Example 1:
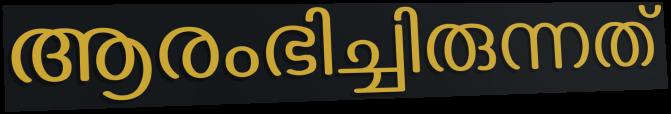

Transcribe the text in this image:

ആരംഭിച്ചിരുന്നത്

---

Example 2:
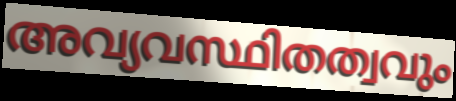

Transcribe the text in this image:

അവ്യവസ്ഥിതത്വവും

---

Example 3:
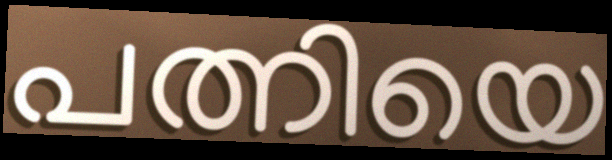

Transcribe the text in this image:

പത്നിയെ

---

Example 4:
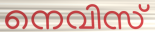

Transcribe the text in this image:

നെവിസ്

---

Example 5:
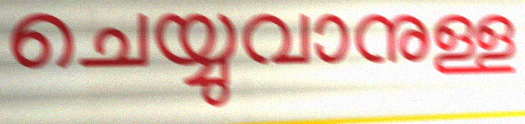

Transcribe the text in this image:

ചെയ്യുവാനുള്ള